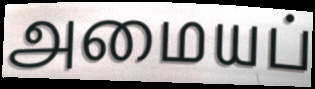
அமையப்